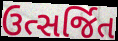
ઉત્સર્જિત